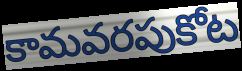
కామవరపుకోట